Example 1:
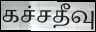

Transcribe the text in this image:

கச்சதீவு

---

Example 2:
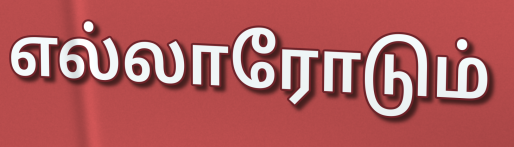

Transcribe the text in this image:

எல்லாரோடும்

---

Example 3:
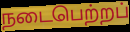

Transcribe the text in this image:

நடைபெற்றப்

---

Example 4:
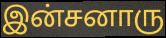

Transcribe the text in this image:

இன்சனாரு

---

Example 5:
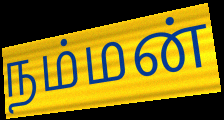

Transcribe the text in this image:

நம்மன்